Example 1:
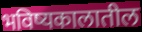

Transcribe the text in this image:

भविष्यकालातील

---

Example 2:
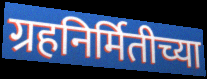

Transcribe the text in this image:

ग्रहनिर्मितीच्या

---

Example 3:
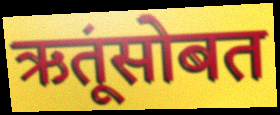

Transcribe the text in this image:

ऋतूंसोबत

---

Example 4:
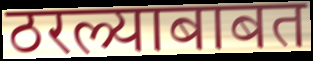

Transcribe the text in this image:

ठरल्याबाबत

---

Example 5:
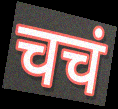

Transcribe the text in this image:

चचं